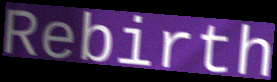
Rebirth